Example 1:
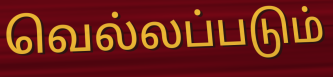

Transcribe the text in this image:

வெல்லப்படும்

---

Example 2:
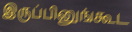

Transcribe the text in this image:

இருப்பினுங்கூட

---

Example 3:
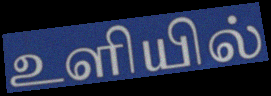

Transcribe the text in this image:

உளியில்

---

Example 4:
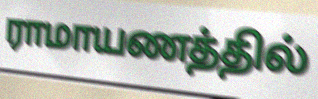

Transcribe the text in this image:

ராமாயணத்தில்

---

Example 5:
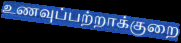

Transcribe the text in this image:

உணவுப்பற்றாக்குறை